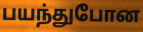
பயந்துபோன